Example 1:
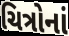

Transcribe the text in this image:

ચિત્રોનાં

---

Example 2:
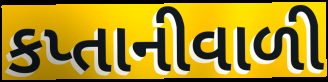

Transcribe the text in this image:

કપ્તાનીવાળી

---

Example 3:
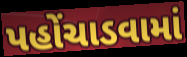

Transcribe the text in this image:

પહોંચાડવામાં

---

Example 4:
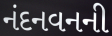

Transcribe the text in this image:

નંદનવનની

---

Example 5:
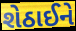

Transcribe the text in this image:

શેઠાઈને